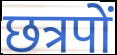
छत्रपों